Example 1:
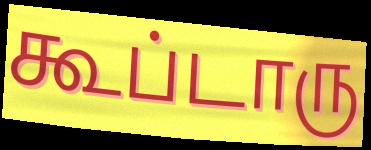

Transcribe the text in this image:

கூப்டாரு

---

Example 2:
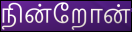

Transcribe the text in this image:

நின்றோன்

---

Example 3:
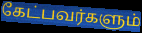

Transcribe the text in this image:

கேட்பவர்களும்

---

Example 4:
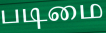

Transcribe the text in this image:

படிமை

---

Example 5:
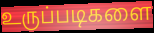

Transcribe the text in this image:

உருப்படிகளை